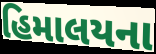
હિમાલયના